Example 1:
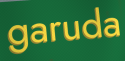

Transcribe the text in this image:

garuda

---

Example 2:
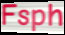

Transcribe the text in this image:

Fsph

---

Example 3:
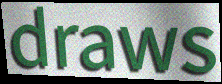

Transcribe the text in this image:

draws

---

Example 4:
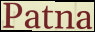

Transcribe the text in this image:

Patna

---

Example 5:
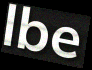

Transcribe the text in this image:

lbe